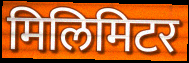
मिलिमिटर